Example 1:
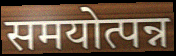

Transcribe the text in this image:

समयोत्पन्न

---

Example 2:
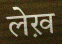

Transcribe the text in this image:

लेख़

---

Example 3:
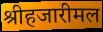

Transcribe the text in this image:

श्रीहजारीमल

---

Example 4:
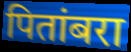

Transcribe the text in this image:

पितांबरा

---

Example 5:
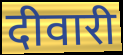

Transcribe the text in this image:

दीवारी